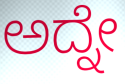
ಅದ್ನೇ